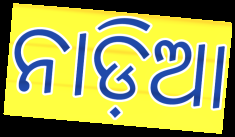
ନାଡ଼ିଆ